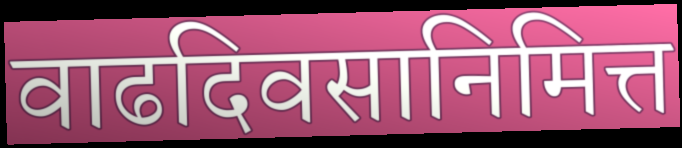
वाढदिवसानिमित्त